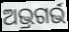
ଅଭ୍ରଗର୍ଭ